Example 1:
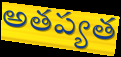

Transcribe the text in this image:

అతప్యత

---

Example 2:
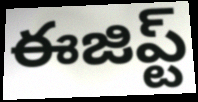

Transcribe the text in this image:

ఈజిప్ట్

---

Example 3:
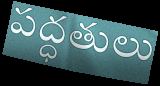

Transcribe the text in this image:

పద్ధతులు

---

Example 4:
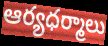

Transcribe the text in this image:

ఆర్యధర్మాలు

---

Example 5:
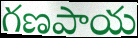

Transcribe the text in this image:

గణపాయ